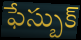
ఫేస్బుక్